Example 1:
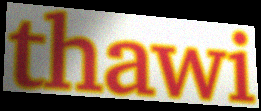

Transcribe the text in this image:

thawi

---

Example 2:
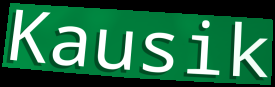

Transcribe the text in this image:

Kausik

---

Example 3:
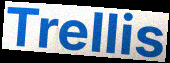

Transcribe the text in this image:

Trellis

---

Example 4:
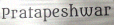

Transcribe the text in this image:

Pratapeshwar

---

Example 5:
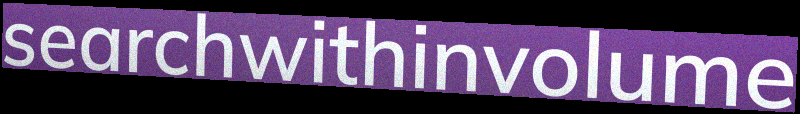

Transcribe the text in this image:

searchwithinvolume